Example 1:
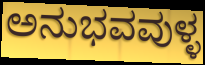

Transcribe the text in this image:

ಅನುಭವವುಳ್ಳ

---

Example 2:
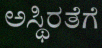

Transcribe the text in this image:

ಅಸ್ಥಿರತೆಗೆ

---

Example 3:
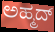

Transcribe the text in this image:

ಅಹ್ಮದ್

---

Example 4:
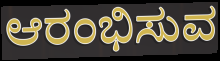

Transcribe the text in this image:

ಆರಂಭಿಸುವ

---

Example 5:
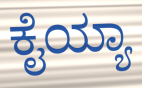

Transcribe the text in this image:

ಕೈಯ್ಯಾ